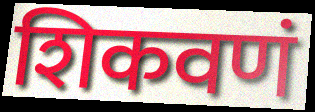
शिकवणं